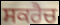
ਸਕਰੈਚ